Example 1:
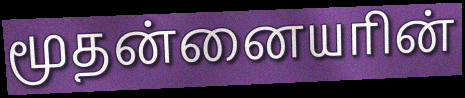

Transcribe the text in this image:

மூதன்னையரின்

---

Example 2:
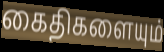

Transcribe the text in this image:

கைதிகளையும்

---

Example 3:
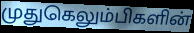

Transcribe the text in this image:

முதுகெலும்பிகளின்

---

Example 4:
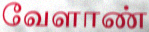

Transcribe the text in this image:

வேளாண்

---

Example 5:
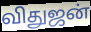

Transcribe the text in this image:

விதுஜன்